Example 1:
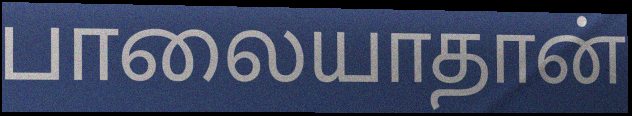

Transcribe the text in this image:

பாலையாதான்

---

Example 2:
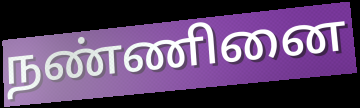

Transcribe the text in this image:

நண்ணினை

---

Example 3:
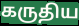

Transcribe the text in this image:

கருதிய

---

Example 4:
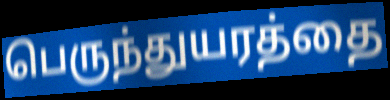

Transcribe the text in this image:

பெருந்துயரத்தை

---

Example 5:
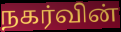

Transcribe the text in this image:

நகர்வின்